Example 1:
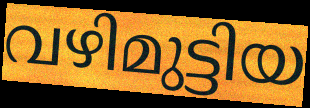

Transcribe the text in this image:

വഴിമുട്ടിയ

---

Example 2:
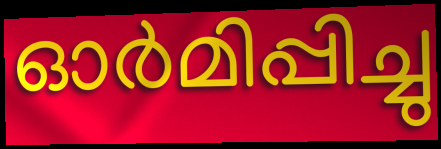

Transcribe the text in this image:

ഓർമിപ്പിച്ചു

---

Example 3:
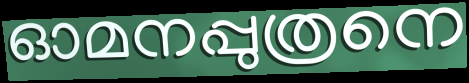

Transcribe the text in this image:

ഓമനപ്പുത്രനെ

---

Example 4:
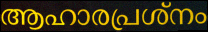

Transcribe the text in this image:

ആഹാരപ്രശ്നം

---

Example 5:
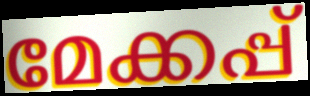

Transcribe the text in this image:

മേക്കപ്പ്